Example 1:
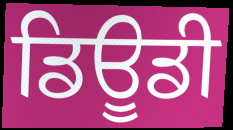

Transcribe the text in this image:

ਡਿਊਡੀ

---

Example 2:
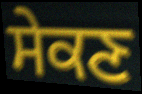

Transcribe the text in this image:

ਸੇਕਣ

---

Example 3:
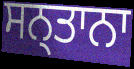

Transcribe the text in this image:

ਸਨ੍ਤਾਨਾ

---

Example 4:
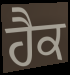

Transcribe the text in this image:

ਹੈਕ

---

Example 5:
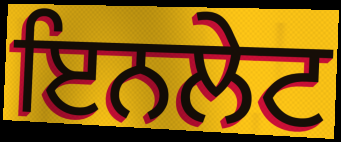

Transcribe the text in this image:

ਇਨਲੇਟ